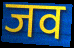
जव